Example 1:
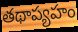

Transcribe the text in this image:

తథాప్యహం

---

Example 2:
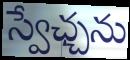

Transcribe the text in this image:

స్వేఛ్చను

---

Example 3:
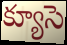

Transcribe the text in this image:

క్యూసె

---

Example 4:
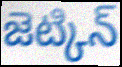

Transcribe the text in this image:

జెట్కిన్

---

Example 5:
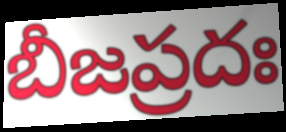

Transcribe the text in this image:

బీజప్రదః